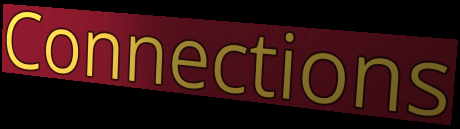
Connections